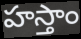
హస్తాం